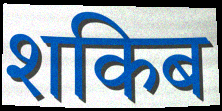
शकिब